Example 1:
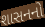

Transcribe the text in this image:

શાસનનો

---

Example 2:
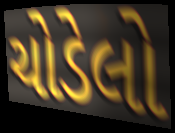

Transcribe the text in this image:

ચોડેલો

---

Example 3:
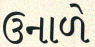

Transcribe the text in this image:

ઉનાળે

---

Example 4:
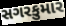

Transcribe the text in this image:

સગરકુમાર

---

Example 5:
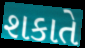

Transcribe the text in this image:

શકાતે